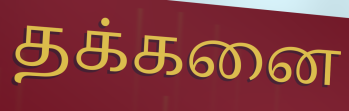
தக்கனை